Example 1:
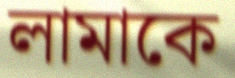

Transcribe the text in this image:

লামাকে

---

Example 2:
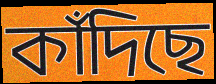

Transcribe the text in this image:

কাঁদিছে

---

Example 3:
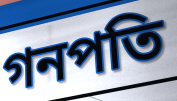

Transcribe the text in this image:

গনপতি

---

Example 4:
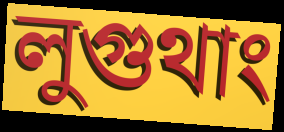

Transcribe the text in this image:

লুগুথাং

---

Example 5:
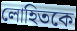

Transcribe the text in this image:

লোহিতকে